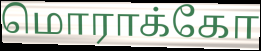
மொராக்கோ